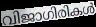
വിജാഗിരികൾ